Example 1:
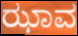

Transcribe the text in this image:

ಝಾವ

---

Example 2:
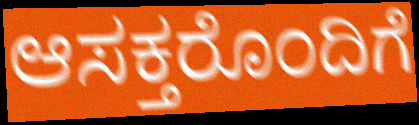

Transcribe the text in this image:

ಆಸಕ್ತರೊಂದಿಗೆ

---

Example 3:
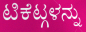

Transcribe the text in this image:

ಟಿಕೆಟ್ಗಳನ್ನು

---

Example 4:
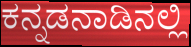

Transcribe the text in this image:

ಕನ್ನಡನಾಡಿನಲ್ಲಿ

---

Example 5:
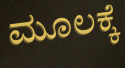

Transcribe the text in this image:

ಮೂಲಕ್ಕೆ